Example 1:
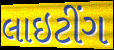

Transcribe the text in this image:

લાઇટીંગ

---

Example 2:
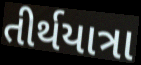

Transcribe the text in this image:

તીર્થયાત્રા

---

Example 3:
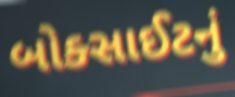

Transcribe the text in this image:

બોક્સાઈટનું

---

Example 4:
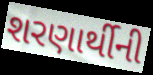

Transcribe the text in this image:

શરણાર્થીની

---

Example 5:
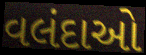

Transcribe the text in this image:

વલંદાઓ